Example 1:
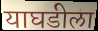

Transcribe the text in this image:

याघडीला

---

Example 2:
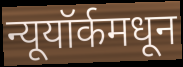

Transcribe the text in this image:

न्यूयॉर्कमधून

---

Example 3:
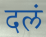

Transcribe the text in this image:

दलं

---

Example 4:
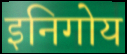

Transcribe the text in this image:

इनिगोय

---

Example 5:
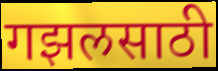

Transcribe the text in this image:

गझलसाठी